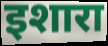
इशारा